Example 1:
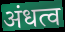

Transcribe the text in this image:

अंधत्व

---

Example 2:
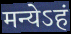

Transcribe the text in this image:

मन्येऽहं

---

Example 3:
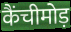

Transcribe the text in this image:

कैंचीमोड़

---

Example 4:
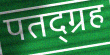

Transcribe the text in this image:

पतद्ग्रह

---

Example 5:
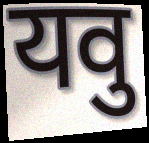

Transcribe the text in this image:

यवु